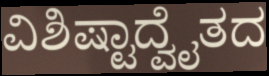
ವಿಶಿಷ್ಟಾದ್ವೈತದ